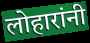
लोहारांनी